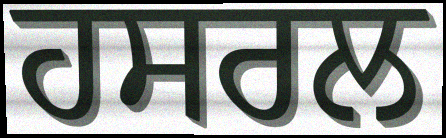
ਹਸਰਲ